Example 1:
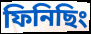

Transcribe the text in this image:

ফিনিছিং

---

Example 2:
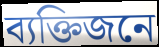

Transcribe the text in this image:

ব্যক্তিজনে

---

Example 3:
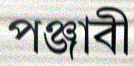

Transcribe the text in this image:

পঞ্জাবী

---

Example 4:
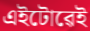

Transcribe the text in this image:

এইটোৱেই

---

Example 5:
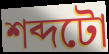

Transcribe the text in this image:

শব্দটো